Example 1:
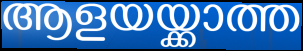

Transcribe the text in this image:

ആളയയ്ക്കാത്ത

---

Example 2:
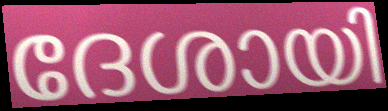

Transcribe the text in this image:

ദേശായി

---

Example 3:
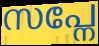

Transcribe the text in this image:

സപ്നേ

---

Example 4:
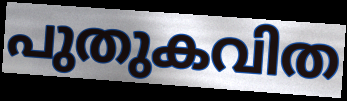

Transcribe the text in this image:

പുതുകവിത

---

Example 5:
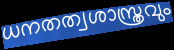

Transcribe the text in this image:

ധനതത്വശാസ്ത്രവും